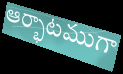
ఆర్భాటముగా